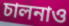
চালনাও